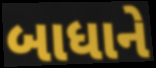
બાધાને